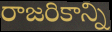
రాజరికాన్ని